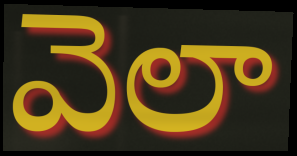
వెలా